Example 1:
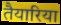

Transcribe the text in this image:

तैयारिया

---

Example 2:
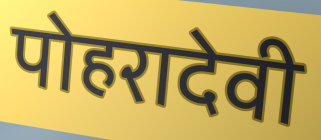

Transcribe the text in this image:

पोहरादेवी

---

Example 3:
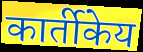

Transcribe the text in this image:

कार्तीकेय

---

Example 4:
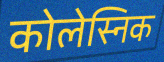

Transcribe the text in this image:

कोलेस्निक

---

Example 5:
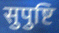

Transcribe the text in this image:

सुपुष्टि